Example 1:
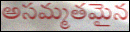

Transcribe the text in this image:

అసమ్మతమైన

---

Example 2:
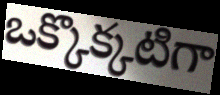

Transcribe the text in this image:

ఒక్కొక్కటిగా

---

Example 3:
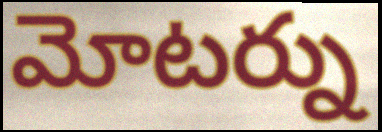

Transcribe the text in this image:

మోటర్ను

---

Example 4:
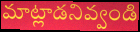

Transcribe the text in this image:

మాట్లాడనివ్వండి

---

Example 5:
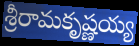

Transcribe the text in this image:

శ్రీరామకృష్ణయ్య